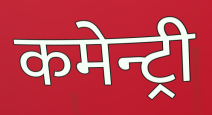
कमेन्ट्री